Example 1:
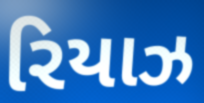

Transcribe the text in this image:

રિયાઝ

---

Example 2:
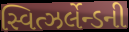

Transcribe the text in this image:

સ્વિત્ઝર્લેન્ડની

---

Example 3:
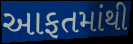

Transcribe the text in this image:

આફતમાંથી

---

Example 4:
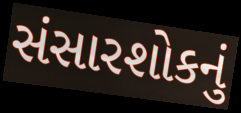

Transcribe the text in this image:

સંસારશોકનું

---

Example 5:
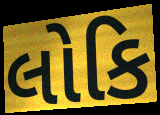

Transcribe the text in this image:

લોકિ